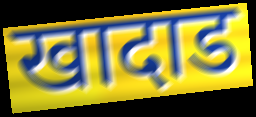
खादाड